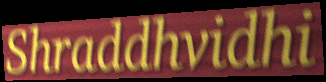
Shraddhvidhi